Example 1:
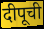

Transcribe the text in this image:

दीपूची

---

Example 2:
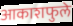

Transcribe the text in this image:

आकाशफुले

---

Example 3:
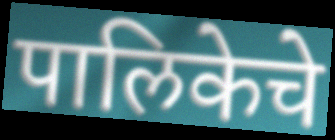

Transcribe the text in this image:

पालिकेचे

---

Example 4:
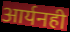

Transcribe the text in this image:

आर्यनही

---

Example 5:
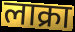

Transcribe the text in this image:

लाक्रा